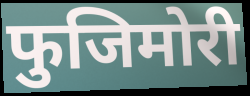
फुजिमोरी